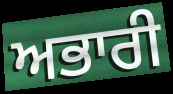
ਅਭਾਰੀ